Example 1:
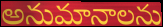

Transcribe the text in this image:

అనుమానాలను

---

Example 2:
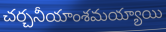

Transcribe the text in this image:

చర్చనీయాంశమయ్యాయి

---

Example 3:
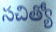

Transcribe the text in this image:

సచిత్యో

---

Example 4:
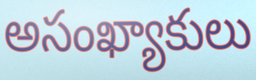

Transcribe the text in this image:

అసంఖ్యాకులు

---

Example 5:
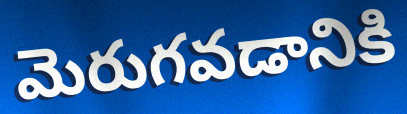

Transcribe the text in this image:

మెరుగవడానికి